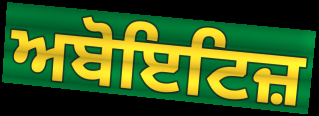
ਅਬੋਇਟਿਜ਼